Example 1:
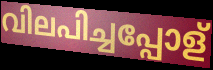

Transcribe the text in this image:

വിലപിച്ചപ്പോള്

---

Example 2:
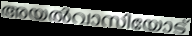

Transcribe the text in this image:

അയൽവാസിയോട്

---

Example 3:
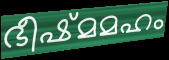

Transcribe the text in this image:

ഭീഷ്മമഹം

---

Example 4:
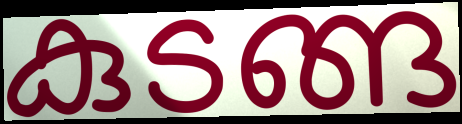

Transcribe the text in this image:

കുടങ്ങ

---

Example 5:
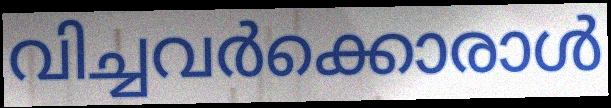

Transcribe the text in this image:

വിച്ചവർക്കൊരാൾ